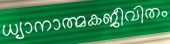
ധ്യാനാത്മകജീവിതം